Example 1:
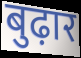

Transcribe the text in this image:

बुढ़ार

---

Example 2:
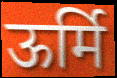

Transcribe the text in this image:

ऊर्मि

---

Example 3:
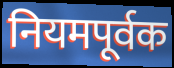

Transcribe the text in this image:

नियमपूर्वक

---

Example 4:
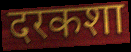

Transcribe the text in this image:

दरकशा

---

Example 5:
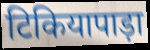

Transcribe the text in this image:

टिकियापाड़ा